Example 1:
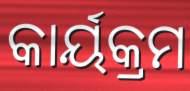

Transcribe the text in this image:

କାର୍ୟକ୍ରମ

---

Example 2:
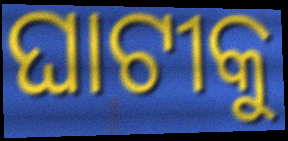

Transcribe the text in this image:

ଘାଟୀକୁ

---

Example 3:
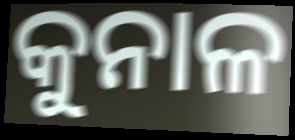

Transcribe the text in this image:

କୁନାଳ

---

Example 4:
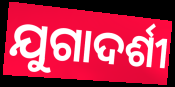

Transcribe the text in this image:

ଯୁଗାଦର୍ଶୀ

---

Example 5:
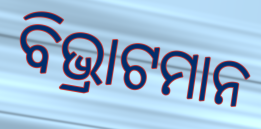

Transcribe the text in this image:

ବିଭ୍ରାଟମାନ